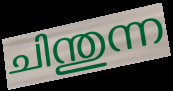
ചിന്തുന്ന